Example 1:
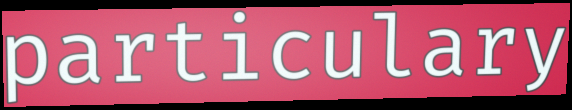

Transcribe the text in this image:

particulary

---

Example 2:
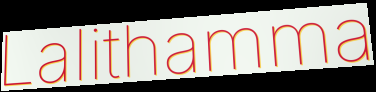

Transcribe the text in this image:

Lalithamma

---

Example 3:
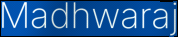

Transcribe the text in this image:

Madhwaraj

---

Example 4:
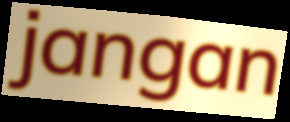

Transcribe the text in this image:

jangan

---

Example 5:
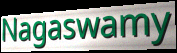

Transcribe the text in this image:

Nagaswamy